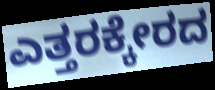
ಎತ್ತರಕ್ಕೇರದ